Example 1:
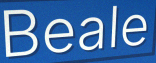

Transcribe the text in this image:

Beale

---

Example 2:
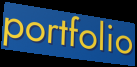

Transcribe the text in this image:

portfolio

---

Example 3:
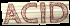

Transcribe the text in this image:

ACID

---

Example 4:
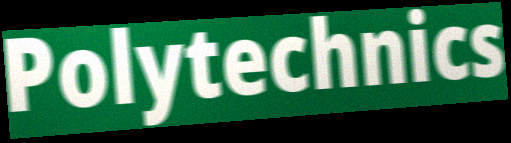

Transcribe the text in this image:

Polytechnics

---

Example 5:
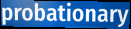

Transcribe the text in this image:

probationary